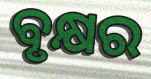
ବୃକ୍ଷର